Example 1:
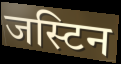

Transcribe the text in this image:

जस्‍टिन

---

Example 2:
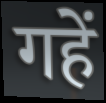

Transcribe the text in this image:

गहें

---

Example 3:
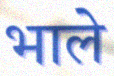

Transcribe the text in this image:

भाले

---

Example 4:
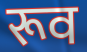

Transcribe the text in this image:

रूव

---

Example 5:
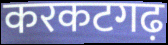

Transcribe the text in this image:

करकटगढ़